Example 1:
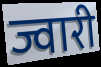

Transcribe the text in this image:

ज्वारी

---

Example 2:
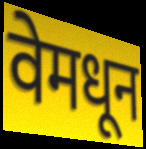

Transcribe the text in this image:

वेमधून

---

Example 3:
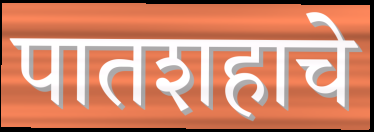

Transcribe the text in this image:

पातशहाचे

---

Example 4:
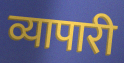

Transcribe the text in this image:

व्यापारी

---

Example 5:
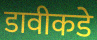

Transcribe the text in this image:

डावीकडे